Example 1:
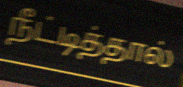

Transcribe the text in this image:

நீட்டித்தால்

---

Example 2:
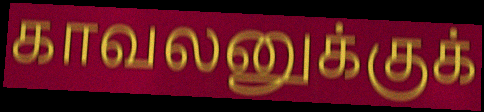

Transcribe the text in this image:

காவலனுக்குக்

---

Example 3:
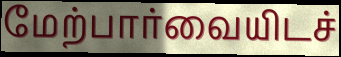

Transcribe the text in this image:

மேற்பார்வையிடச்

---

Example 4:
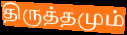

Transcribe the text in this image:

திருத்தமும்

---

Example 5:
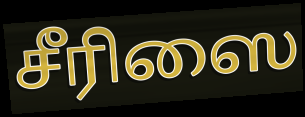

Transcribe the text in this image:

சீரிஸை